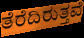
ತೆರೆದಿರುತ್ತವೆ